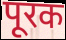
पूरक